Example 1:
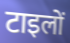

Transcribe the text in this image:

टाइलों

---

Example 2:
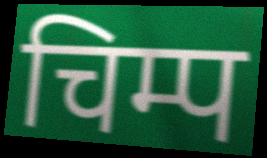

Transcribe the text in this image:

चिम्प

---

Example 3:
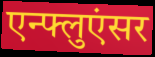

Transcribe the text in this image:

एन्फ्लुएंसर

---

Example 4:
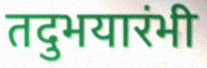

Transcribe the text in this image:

तदुभयारंभी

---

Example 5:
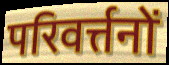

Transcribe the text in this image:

परिवर्त्तनों